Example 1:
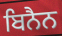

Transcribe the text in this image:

ਬਿਨੈਨ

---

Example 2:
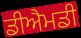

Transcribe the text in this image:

ਡੀਐਮਡੀ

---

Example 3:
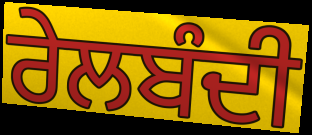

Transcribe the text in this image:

ਰੇਲਬੰਦੀ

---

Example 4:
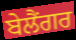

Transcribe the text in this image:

ਬੇਲੈਂਗਰ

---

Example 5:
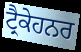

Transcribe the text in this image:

ਟ੍ਰੈਕੇਹਨਰ